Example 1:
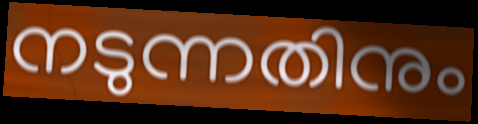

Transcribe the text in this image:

നടുന്നതിനും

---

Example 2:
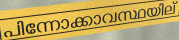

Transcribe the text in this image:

പിന്നോക്കാവസ്ഥയില്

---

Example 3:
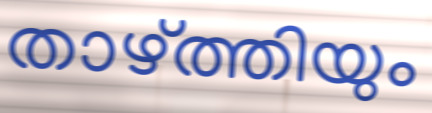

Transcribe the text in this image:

താഴ്ത്തിയും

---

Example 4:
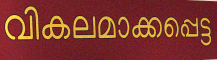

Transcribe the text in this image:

വികലമാക്കപ്പെട്ട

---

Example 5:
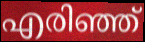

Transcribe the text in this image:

എരിഞ്ഞ്